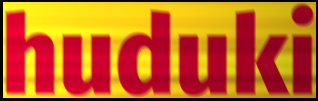
huduki